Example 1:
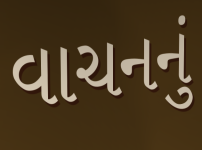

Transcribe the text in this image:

વાચનનું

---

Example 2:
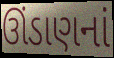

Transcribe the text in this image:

ઊંડાણનાં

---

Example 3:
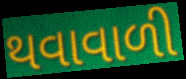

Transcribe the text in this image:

થવાવાળી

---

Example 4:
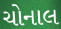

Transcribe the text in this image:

ચોનાલ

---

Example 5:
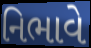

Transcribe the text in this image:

નિભાવે